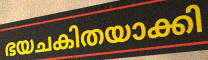
ഭയചകിതയാക്കി